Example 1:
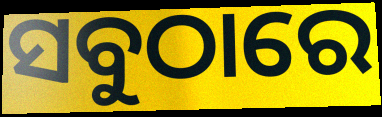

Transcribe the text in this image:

ସବୁଠାରେ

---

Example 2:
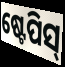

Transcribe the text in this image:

ଷ୍ଟେପିସ୍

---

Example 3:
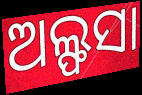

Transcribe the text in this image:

ଅଲ୍ଫସା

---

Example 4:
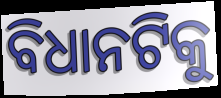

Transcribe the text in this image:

ବିଧାନଟିକୁ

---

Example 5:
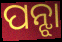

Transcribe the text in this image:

ପନ୍ଝା